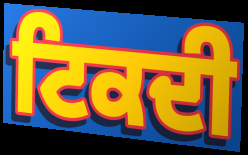
ਟਿਕਦੀ